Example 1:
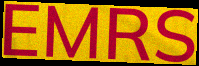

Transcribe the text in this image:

EMRS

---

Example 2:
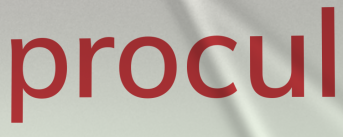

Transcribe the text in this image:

procul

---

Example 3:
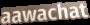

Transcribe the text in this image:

aawachat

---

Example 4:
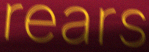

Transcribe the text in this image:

rears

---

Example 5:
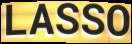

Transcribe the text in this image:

LASSO